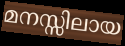
മനസ്സിലായ